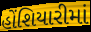
હોંશિયારીમાં